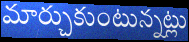
మార్చుకుంటున్నట్లు